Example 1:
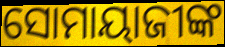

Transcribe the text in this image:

ସୋମାୟାଜୀଙ୍କ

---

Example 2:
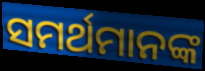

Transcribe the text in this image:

ସମର୍ଥମାନଙ୍କ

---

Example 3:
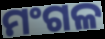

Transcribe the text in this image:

ମଂଗଳ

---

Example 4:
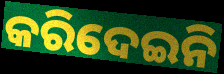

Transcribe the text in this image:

କରିଦେଇନି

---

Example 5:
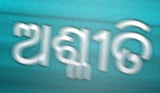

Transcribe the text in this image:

ଅଶ୍ଳୀତି